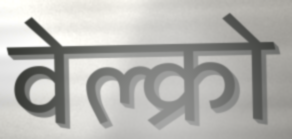
वेल्क्रो